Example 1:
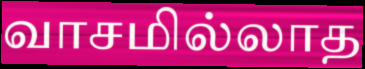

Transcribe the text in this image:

வாசமில்லாத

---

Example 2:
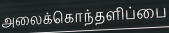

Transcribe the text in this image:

அலைக்கொந்தளிப்பை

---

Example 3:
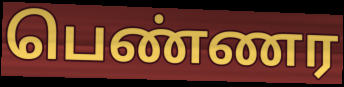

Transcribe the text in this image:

பெண்ணர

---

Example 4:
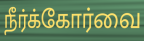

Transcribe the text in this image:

நீர்க்கோர்வை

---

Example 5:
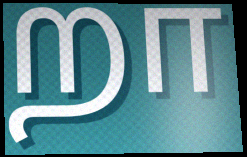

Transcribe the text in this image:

றா